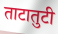
ताटातुटी